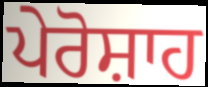
ਪੇਰੋਸ਼ਾਹ